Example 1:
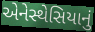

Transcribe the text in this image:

એનેસ્થેસિયાનું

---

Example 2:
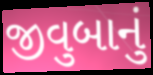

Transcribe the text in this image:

જીવુબાનું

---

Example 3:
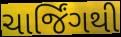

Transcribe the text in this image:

ચાર્જિંગથી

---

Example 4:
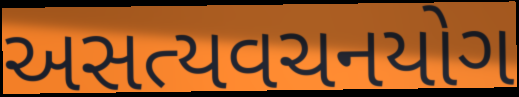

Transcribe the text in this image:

અસત્યવચનયોગ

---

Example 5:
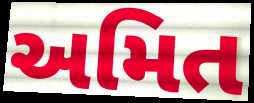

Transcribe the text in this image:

અમિત